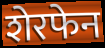
शेरफेन